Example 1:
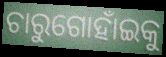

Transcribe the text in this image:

ଚାରୁଗୋହାଁଇକୁ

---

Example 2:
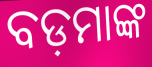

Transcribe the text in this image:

ବଡ଼ମାଙ୍କ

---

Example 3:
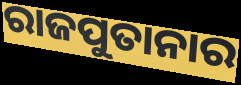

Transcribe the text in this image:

ରାଜପୁତାନାର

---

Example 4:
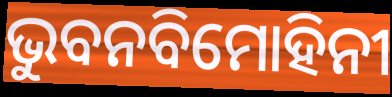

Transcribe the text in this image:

ଭୁବନବିମୋହିନୀ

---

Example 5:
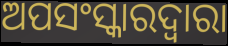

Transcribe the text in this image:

ଅପସଂସ୍କାରଦ୍ୱାରା